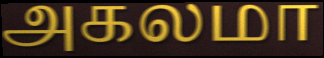
அகலமா